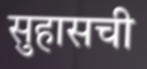
सुहासची